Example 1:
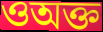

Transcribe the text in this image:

ওঅক্ত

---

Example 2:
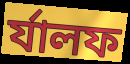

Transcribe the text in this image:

র্যালফ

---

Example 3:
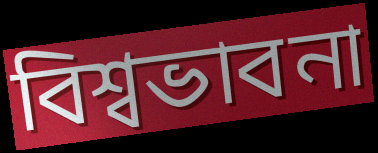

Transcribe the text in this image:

বিশ্বভাবনা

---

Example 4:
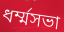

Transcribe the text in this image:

ধর্ম্মসভা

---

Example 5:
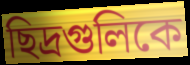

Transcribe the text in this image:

ছিদ্রগুলিকে